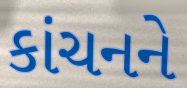
કાંચનને